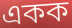
একক